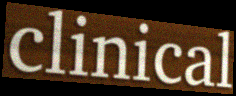
clinical